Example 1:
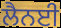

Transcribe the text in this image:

ਲੈਨਈ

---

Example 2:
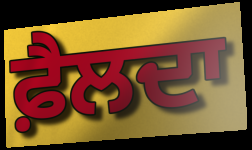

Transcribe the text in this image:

ਫ਼ੈਲਦਾ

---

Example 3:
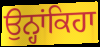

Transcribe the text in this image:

ਉਨ੍ਹਾਂਕਿਹਾ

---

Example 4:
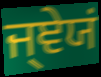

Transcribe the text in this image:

ਜ੍ਞੇਯਂ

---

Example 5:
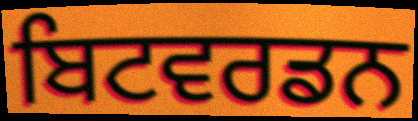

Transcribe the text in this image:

ਬਿਟਵਰਡਨ